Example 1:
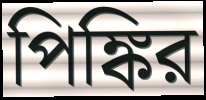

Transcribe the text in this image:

পিঙ্কির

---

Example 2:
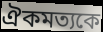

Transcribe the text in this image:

ঐকমত্যকে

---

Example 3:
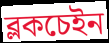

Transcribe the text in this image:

ব্লকচেইন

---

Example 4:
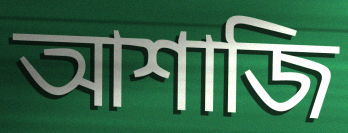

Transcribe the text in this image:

আশাজি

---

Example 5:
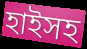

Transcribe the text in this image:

হাইসহ